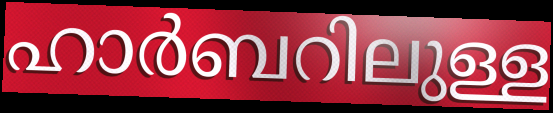
ഹാർബറിലുള്ള